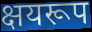
क्षयरूप